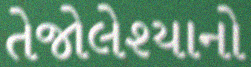
તેજોલેશ્યાનો